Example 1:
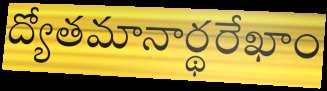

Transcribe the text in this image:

ద్యోతమానార్థరేఖాం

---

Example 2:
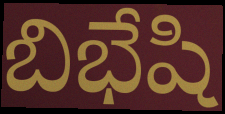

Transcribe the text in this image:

బిభేషి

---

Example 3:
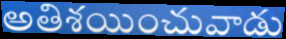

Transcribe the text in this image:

అతిశయించువాడు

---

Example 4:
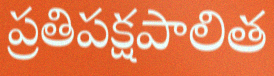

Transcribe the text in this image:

ప్రతిపక్షపాలిత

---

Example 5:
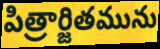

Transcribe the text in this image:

పిత్రార్జితమును